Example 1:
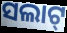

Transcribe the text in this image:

ସଲାଟ୍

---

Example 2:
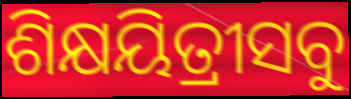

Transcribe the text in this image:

ଶିକ୍ଷୟିତ୍ରୀସବୁ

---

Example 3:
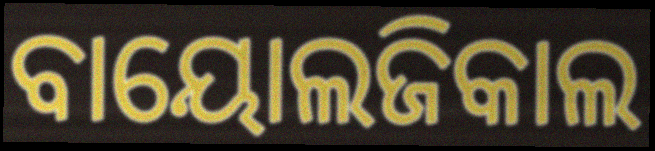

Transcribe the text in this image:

ବାୟୋଲଜିକାଲ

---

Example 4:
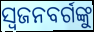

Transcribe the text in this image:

ସ୍ୱଜନବର୍ଗଙ୍କୁ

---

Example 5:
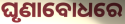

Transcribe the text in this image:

ଘୃଣାବୋଧରେ